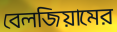
বেলজিয়ামের